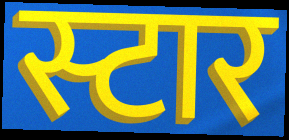
स्‍टार